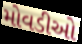
મોવડીઓ